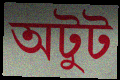
অটুট